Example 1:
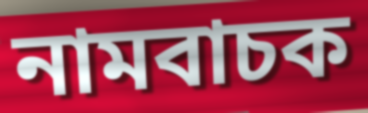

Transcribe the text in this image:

নামবাচক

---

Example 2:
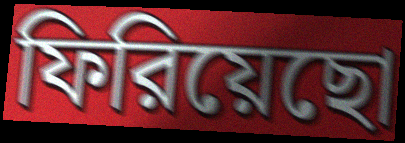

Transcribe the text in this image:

ফিরিয়েছো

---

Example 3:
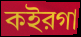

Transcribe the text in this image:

কইরগা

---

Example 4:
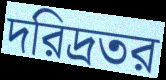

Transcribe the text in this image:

দরিদ্রতর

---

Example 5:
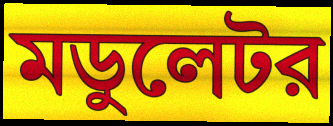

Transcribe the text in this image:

মডুলেটর